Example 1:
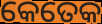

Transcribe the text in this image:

କେତେକ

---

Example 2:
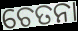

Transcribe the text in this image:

ଚେତନା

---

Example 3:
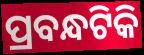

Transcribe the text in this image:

ପ୍ରବନ୍ଧଟିକି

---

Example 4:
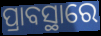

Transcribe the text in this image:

ପ୍ରାବସ୍ଥାରେ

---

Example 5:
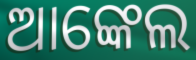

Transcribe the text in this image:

ଆଙ୍କେଲ